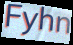
Fyhn